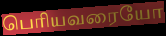
பெரியவரையோ